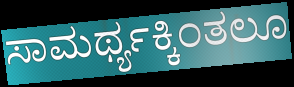
ಸಾಮರ್ಥ್ಯಕ್ಕಿಂತಲೂ